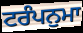
ਟਰੰਪਨੁਮਾ